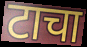
टाचा